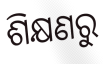
ଶିକ୍ଷଣରୁ